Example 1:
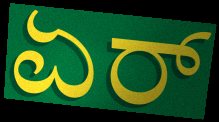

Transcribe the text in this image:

ಏರ್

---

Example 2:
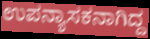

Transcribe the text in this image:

ಉಪನ್ಯಾಸಕನಾಗಿದ್ದ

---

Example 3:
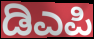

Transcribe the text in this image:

ಡಿಎಪಿ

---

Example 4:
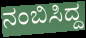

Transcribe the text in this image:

ನಂಬಿಸಿದ್ದ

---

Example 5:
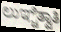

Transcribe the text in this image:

ಲುಞ್ಚಿತ್ವಾತಿ